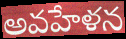
అవహేళన